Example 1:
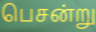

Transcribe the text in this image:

பெசன்று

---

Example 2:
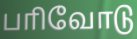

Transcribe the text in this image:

பரிவோடு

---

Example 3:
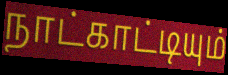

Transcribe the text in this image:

நாட்காட்டியும்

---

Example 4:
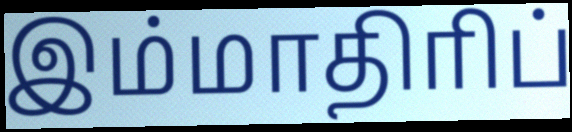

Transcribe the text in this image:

இம்மாதிரிப்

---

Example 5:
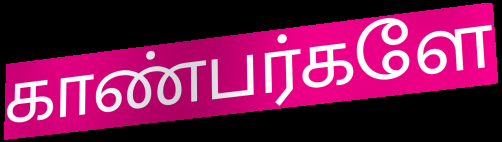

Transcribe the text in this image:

காண்பர்களே